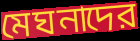
মেঘনাদের